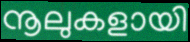
നൂലുകളായി